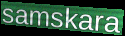
samskara